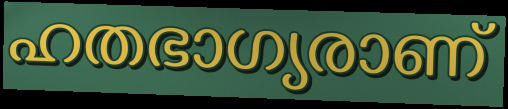
ഹതഭാഗ്യരാണ്